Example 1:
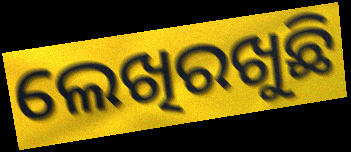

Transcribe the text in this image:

ଲେଖିରଖୁଛି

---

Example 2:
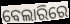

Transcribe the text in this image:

ବେଲାରିରେ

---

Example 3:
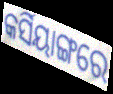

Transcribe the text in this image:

କର୍ସିୟାଙ୍ଗରେ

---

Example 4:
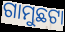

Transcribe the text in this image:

ଗାମୁଛଟା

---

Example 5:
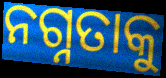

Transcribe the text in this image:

ନଗ୍ନତାକୁ